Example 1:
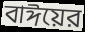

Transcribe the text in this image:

বাঈয়ের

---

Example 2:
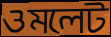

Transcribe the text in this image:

ওমলেট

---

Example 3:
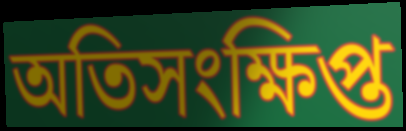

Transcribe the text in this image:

অতিসংক্ষিপ্ত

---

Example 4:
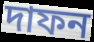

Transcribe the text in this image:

দাফন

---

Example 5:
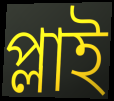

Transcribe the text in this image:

প্লাই